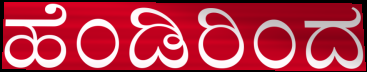
ಹೆಂಡಿರಿಂದ